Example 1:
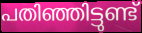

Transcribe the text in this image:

പതിഞ്ഞിട്ടുണ്ട്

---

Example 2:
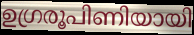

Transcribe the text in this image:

ഉഗ്രരൂപിണിയായി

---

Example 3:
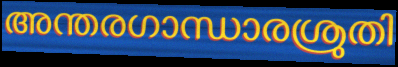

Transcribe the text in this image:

അന്തരഗാന്ധാരശ്രുതി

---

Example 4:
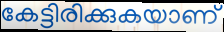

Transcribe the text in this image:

കേട്ടിരിക്കുകയാണ്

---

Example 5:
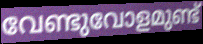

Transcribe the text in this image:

വേണ്ടുവോളമുണ്ട്